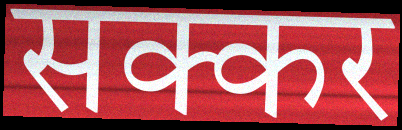
सक्कर